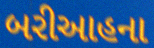
બરીઆહના